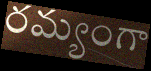
రమ్యంగా